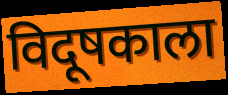
विदूषकाला